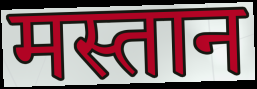
मस्तान